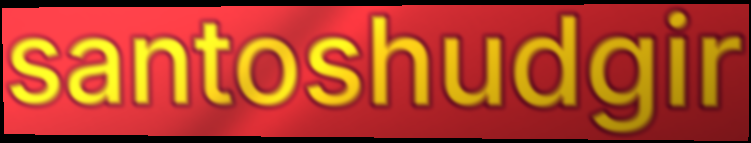
santoshudgir